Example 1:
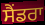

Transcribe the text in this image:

ਸੈਂਡਰਾ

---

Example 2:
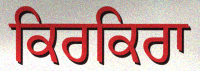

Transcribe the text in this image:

ਕਿਰਕਿਰਾ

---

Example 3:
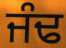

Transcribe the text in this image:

ਜੰਢ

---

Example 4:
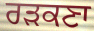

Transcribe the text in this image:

ਰੜਕਣਾ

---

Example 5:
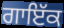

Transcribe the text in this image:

ਗਾਇੱਕ